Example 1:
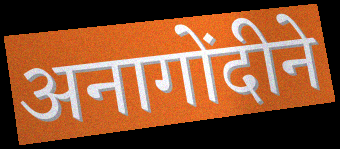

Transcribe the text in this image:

अनागोंदीने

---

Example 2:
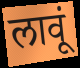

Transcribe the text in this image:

लावूं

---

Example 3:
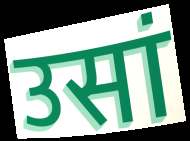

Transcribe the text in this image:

उसां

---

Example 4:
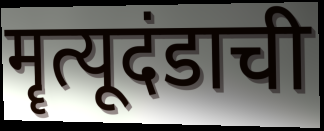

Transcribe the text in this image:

मॄत्यूदंडाची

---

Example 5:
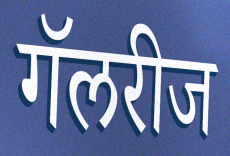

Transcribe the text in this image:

गॅलरीज